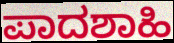
ಪಾದಶಾಹಿ